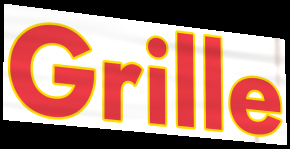
Grille